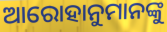
ଆରୋହାନୁମାନଙ୍କୁ